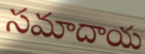
సమాదాయ